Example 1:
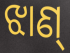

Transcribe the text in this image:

ଝାଣ୍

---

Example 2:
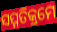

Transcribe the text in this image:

ସମ୍ମତିକ୍ରମେ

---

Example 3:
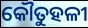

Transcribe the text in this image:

କୌତୁହଳୀ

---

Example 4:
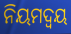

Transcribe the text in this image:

ନିୟମଦ୍ୱୟ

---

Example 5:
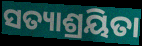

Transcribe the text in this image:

ସତ୍ୟାଶ୍ରୟିତା